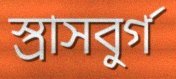
স্ত্রাসবুর্গ